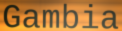
Gambia